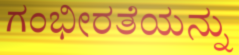
ಗಂಭೀರತೆಯನ್ನು